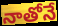
నాతోనే